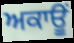
ਅਕਾਊਂ